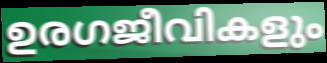
ഉരഗജീവികളും